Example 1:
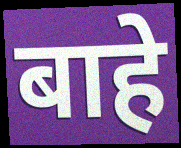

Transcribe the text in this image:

बाहे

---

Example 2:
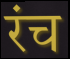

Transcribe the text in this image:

रंच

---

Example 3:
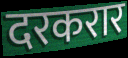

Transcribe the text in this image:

दरकरार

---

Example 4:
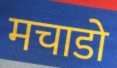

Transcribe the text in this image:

मचाडो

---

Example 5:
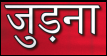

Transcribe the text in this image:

जुड़ना